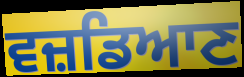
ਵਜ਼ਡਿਆਣ